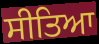
ਸੀਤਿਆ